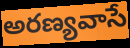
అరణ్యవాసే